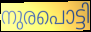
നുരപൊട്ടി